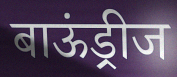
बाऊंड्रीज